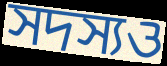
সদস্যও